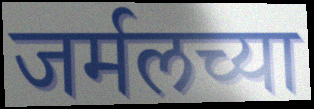
जर्मलच्या